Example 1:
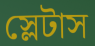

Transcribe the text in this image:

স্লেটাস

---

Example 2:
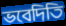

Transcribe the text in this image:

ভবেদিতি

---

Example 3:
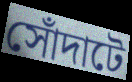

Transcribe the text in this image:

সোঁদাটে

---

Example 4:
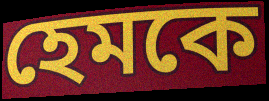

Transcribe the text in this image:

হেমকে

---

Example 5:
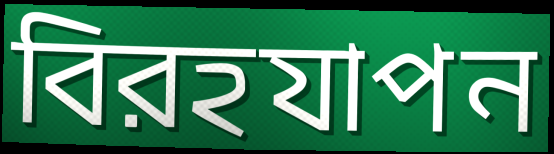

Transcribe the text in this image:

বিরহযাপন